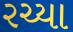
રચ્યા